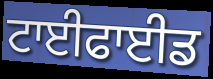
ਟਾਈਫਾਈਡ